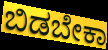
ಬಿಡಬೇಕಾ